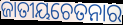
ଜାତୀୟଚେତନାର